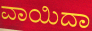
ವಾಯಿದಾ